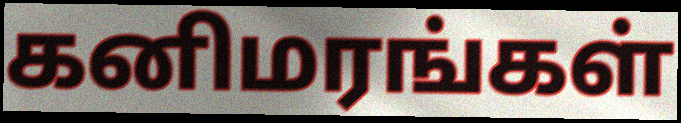
கனிமரங்கள்